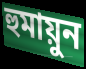
হুমায়ুন